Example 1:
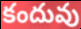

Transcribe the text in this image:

కందువు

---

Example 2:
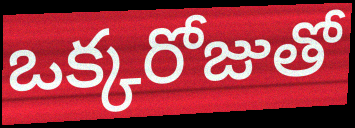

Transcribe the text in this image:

ఒక్కరోజుతో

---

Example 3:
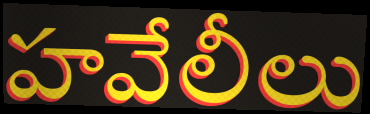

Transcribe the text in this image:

హవేలీలు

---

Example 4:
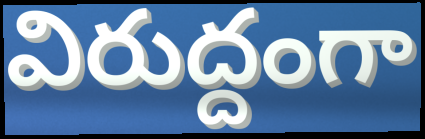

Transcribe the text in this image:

విరుద్దంగా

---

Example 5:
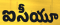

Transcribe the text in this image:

ఐసీయూ